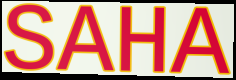
SAHA